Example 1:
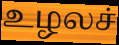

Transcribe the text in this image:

உழலச்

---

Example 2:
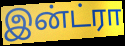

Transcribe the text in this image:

இன்ட்ரா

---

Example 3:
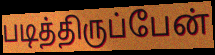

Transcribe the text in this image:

படித்திருப்பேன்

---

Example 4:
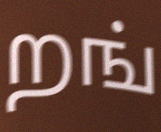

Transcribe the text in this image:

றங்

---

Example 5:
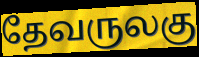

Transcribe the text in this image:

தேவருலகு